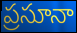
ప్రసూనా